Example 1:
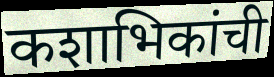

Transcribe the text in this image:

कशाभिकांची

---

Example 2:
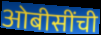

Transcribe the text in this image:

ओबीसींची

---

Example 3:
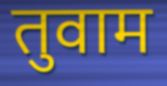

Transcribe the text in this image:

तुवाम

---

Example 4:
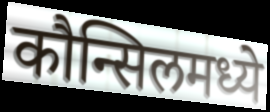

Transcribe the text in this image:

कौन्सिलमध्ये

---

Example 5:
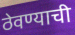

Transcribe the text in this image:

ठेवण्याची